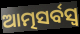
ଆତ୍ମସର୍ବସ୍ଵ